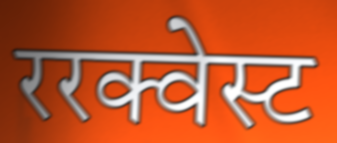
ररक्वेस्ट